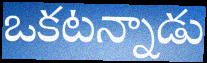
ఒకటన్నాడు